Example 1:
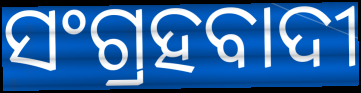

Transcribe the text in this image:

ସଂଗ୍ରହବାଦୀ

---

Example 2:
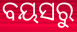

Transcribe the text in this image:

ବୟସରୁ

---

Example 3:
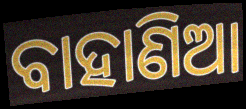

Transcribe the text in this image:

ବାହାଣିଆ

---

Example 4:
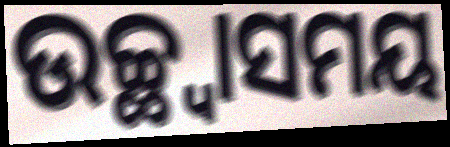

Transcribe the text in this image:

ଉଚ୍ଛ୍ୱାସମୟ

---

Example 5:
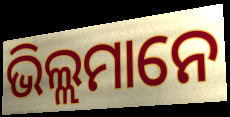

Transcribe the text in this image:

ଭିଲ୍ଲମାନେ